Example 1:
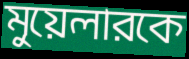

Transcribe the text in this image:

মুয়েলারকে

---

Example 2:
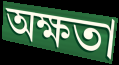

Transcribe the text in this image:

অক্ষতা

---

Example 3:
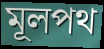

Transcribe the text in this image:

মূলপথ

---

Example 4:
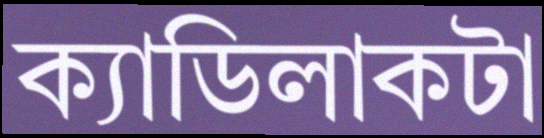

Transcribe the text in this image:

ক্যাডিলাকটা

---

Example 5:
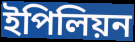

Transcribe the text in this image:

ইপিলিয়ন